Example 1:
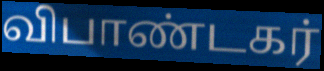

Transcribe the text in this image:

விபாண்டகர்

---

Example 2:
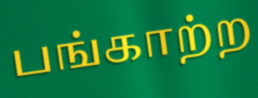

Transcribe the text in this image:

பங்காற்ற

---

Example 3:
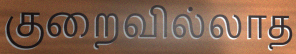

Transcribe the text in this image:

குறைவில்லாத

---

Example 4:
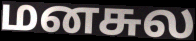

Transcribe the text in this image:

மனசுல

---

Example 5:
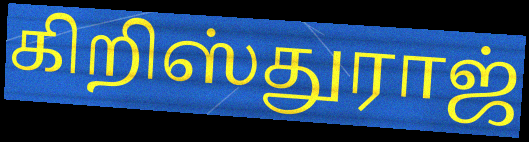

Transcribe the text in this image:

கிறிஸ்துராஜ்